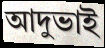
আদুভাই